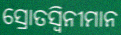
ସ୍ରୋତସ୍ୱିନୀମାନ